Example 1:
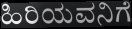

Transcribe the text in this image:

ಹಿರಿಯವನಿಗೆ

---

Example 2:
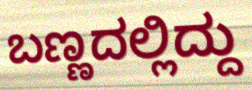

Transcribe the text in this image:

ಬಣ್ಣದಲ್ಲಿದ್ದು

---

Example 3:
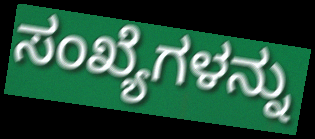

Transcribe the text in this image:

ಸಂಖ್ಯೆಗಳನ್ನು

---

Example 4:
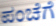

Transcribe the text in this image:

ಪಂಚೆಗೆ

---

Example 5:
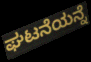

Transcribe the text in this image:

ಘಟನೆಯನ್ನೆ